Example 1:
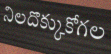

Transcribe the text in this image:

నిలదొక్కుకోగల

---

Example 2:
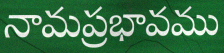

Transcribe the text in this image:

నామప్రభావము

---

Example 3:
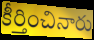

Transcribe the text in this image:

కీర్తించినారు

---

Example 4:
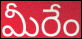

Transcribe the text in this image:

మీరేం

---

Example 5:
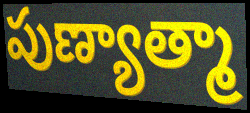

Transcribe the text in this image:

పుణ్యాత్మా